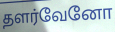
தளர்வேனோ